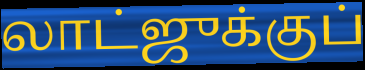
லாட்ஜுக்குப்